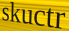
skuctr